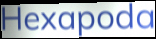
Hexapoda